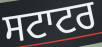
ਸਟਾਟਰ